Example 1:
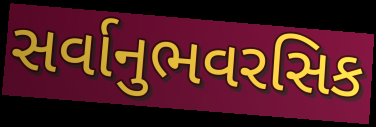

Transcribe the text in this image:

સર્વાનુભવરસિક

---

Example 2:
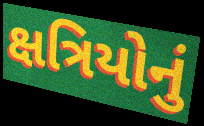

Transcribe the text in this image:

ક્ષત્રિયોનું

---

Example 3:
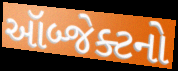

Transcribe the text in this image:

ઑબ્જેક્ટનો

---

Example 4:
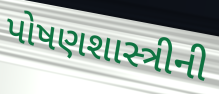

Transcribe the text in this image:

પોષણશાસ્ત્રીની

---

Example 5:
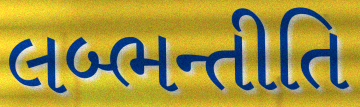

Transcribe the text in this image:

લબ્ભન્તીતિ